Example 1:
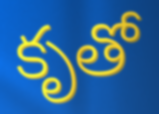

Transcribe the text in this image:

కృతో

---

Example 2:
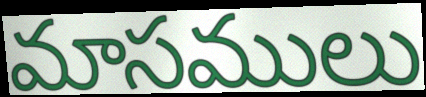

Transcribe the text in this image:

మాసములు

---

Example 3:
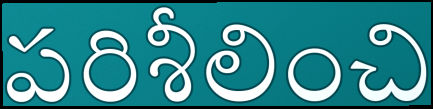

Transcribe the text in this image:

పరిశీలించి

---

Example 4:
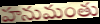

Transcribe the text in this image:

హనుమంతు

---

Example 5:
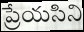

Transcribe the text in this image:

ప్రేయసిని